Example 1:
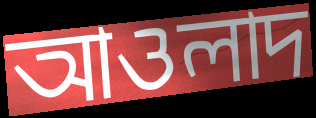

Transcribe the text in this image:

আওলাদ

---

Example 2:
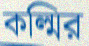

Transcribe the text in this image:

কল্মির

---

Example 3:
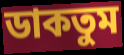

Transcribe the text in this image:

ডাকতুম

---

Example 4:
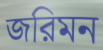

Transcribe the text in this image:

জরিমন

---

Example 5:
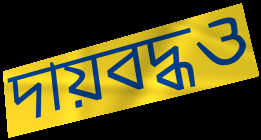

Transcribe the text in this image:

দায়বদ্ধও